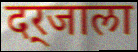
दर्जाला